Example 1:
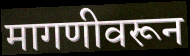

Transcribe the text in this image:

मागणीवरून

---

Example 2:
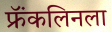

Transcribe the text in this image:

फ्रॅंकलिनला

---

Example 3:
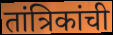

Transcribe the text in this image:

तांत्रिकांची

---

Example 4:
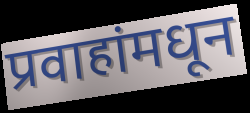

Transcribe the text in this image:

प्रवाहांमधून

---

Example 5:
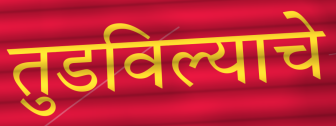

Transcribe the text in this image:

तुडविल्याचे